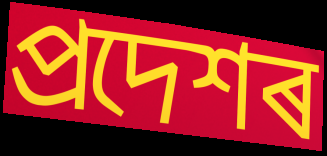
প্ৰদেশৰ